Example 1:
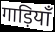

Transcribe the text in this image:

गाड़ियाँ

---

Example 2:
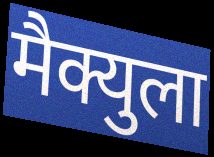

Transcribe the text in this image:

मैक्युला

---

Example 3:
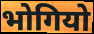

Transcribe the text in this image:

भोगियो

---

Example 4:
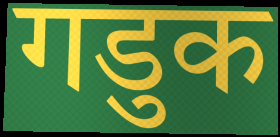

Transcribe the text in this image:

गडुक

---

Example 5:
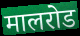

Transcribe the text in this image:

मालरोड